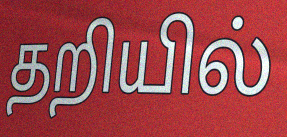
தறியில்